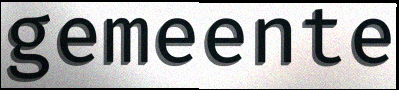
gemeente